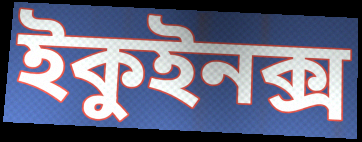
ইকুইনক্স